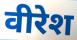
वीरेश